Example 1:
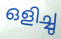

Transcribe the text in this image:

ഒളിച്ചു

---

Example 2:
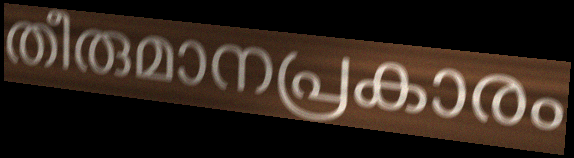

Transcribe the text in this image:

തീരുമാനപ്രകാരം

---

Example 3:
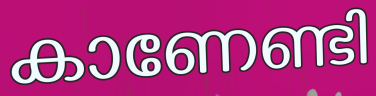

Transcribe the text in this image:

കാണേണ്ടി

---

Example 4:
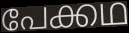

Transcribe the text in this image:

പേക്കഥ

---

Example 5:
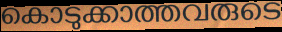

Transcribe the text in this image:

കൊടുക്കാത്തവരുടെ